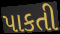
પાકતી